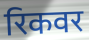
रिकवर